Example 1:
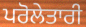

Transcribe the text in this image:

ਪਰੋਲੇਤਾਰੀ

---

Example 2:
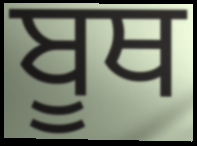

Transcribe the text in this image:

ਬੂਥ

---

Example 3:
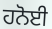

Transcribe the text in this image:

ਹਨੋਈ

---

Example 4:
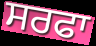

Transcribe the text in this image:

ਸਰਫਾ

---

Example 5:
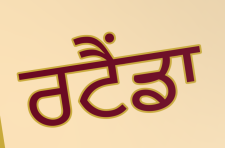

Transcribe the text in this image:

ਰਟੈਂਡਾ